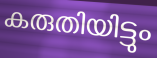
കരുതിയിട്ടും